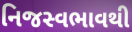
નિજસ્વભાવથી